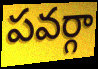
పవర్గా